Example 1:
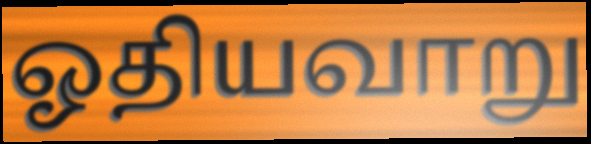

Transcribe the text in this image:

ஓதியவாறு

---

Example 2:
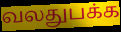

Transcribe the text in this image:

வலதுபக்க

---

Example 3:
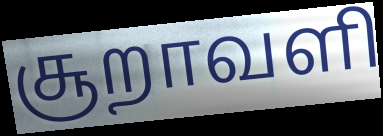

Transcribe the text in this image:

சூறாவளி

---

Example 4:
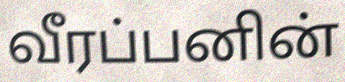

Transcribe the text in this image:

வீரப்பனின்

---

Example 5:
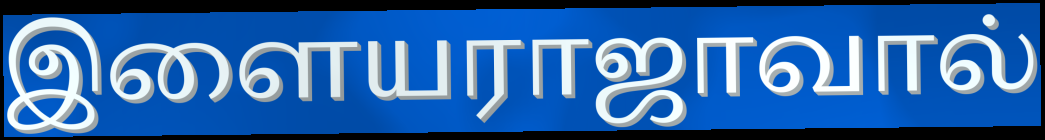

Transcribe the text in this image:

இளையராஜாவால்